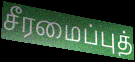
சீரமைப்புத்